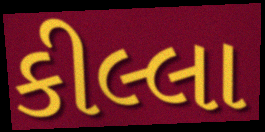
કીલ્લા